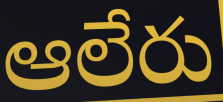
ఆలేరు